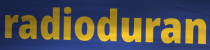
radioduran